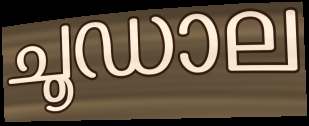
ചൂഡാല